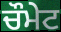
ਚੌਮੇਟ